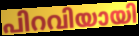
പിറവിയായി